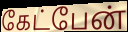
கேட்பேன்